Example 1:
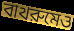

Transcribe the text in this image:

বাথরুমেও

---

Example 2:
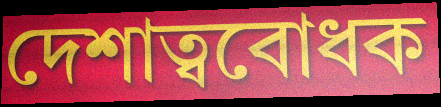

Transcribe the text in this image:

দেশাত্ববোধক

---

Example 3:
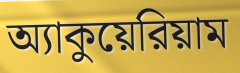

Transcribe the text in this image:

অ্যাকুয়েরিয়াম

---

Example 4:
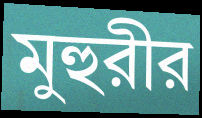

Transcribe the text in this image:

মুহুরীর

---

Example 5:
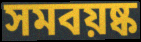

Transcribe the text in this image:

সমবয়ষ্ক